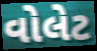
વોલેટ